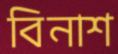
বিনাশ